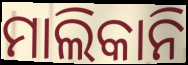
ମାଲିକାନି